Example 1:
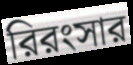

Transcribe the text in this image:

রিরংসার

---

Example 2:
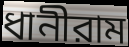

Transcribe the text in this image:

ধানীরাম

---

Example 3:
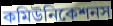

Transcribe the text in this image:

কমিউনিকেশনস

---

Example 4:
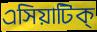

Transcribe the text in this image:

এসিয়াটিক্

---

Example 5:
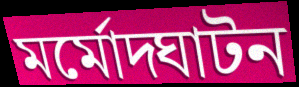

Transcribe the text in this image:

মর্মোদ্ঘাটন